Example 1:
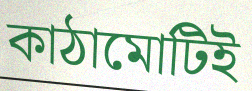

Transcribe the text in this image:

কাঠামোটিই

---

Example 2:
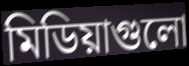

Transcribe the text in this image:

মিডিয়াগুলো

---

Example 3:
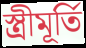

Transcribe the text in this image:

স্ত্রীমূর্তি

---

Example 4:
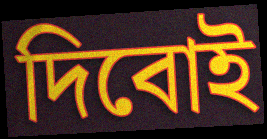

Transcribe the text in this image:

দিবোই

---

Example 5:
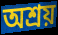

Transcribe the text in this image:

অশ্রয়